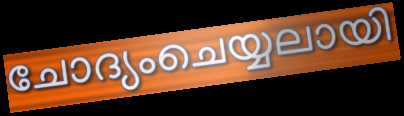
ചോദ്യംചെയ്യലായി